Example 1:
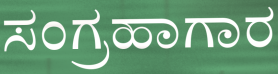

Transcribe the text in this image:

ಸಂಗ್ರಹಾಗಾರ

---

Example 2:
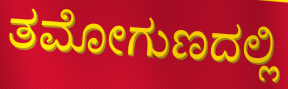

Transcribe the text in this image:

ತಮೋಗುಣದಲ್ಲಿ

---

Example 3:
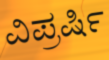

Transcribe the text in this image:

ವಿಪ್ರರ್ಷಿ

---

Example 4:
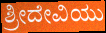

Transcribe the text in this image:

ಶ್ರೀದೇವಿಯು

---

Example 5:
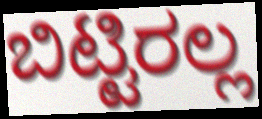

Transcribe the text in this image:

ಬಿಟ್ಟಿರಲ್ಲ